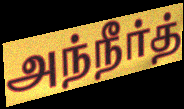
அந்நீர்த்